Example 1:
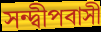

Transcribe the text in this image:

সন্দ্বীপবাসী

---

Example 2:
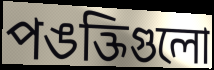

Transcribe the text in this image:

পঙক্তিগুলো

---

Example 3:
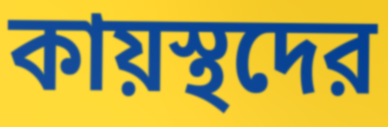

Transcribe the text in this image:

কায়স্থদের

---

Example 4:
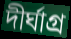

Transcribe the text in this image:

দীর্ঘাগ্র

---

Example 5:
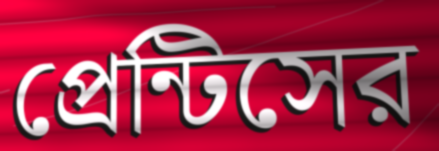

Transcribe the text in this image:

প্রেন্টিসের